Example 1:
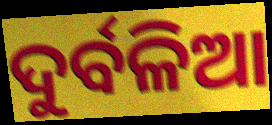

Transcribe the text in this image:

ଦୁର୍ବଳିଆ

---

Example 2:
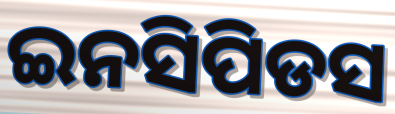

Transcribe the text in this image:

ଇନସିପିଡସ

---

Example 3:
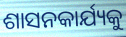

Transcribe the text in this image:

ଶାସନକାର୍ଯ୍ୟକୁ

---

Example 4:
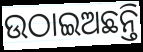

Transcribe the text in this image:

ଉଠାଇଅଛନ୍ତି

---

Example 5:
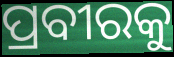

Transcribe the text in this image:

ପ୍ରବୀରକୁ